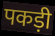
पकड़ी